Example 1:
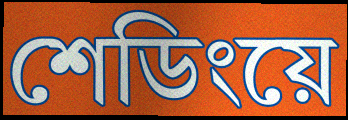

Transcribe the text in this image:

শেডিংয়ে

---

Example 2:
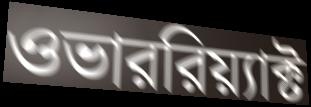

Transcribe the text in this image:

ওভাররিয়্যাক্ট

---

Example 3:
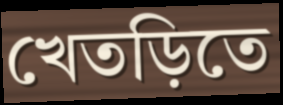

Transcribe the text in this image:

খেতড়িতে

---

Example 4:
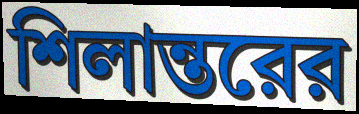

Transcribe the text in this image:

শিলান্তরের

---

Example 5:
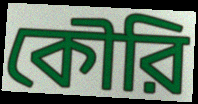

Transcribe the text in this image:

কৌরি